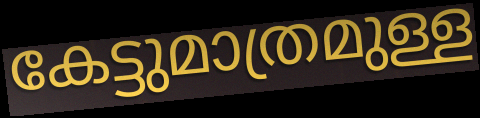
കേട്ടുമാത്രമുള്ള